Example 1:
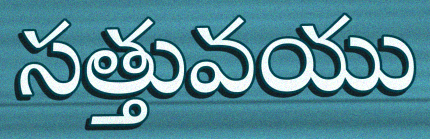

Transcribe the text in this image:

సత్తువయు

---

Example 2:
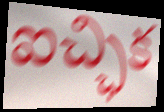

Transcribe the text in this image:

ఐచ్ఛిక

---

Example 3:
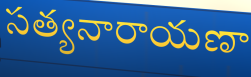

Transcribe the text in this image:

సత్యనారాయణా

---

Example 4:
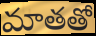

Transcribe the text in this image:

మాతతో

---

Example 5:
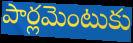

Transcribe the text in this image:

పార్లమెంటుకు